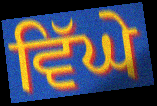
ਵਿੱਘੇ